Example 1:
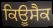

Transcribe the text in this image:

ਕਿਊਸੈਕ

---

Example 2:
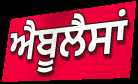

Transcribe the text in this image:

ਐਬੂਲੈਸਾਂ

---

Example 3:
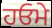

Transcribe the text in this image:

ਹਓਮੇ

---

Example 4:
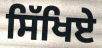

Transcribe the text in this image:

ਸਿੱਖਿਏ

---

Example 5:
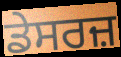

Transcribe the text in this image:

ਡੇਸਰਜ਼